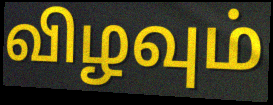
விழவும்